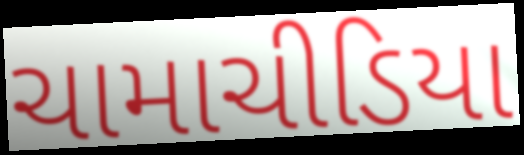
ચામાચીડિયા